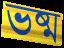
ভষ্ম